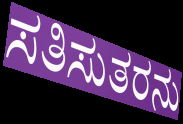
ಸತಿಸುತರನು